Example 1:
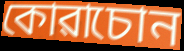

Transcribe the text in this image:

কোৱাচোন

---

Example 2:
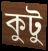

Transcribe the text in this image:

কুটু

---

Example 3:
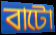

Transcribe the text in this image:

বাটো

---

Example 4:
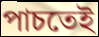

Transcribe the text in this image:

পাচতেই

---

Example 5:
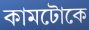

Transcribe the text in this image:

কামটোকে